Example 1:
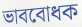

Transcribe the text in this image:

ভাববোধক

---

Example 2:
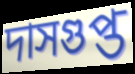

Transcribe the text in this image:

দাসগুপ্ত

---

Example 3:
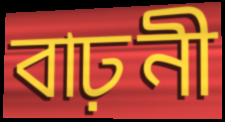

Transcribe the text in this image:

বাঢ়নী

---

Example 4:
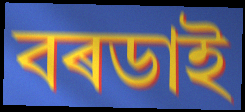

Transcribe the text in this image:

বৰডাই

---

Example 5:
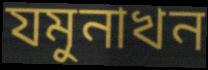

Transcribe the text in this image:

যমুনাখন